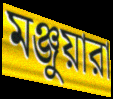
মঞ্জুয়ারা